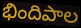
భిందిపాల